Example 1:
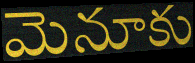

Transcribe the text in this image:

మెనూకు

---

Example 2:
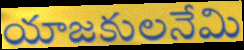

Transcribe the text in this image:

యాజకులనేమి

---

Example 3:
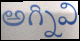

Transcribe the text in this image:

అగ్నివి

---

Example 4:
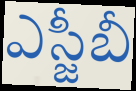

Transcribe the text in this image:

ఎస్జీబీ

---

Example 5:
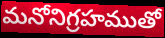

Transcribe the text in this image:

మనోనిగ్రహముతో